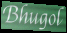
Bhugol